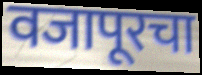
वजापूरचा